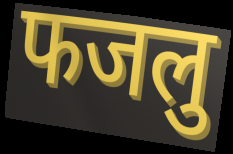
फजलु